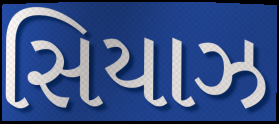
સિયાઝ